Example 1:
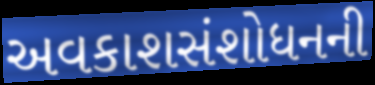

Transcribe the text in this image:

અવકાશસંશોધનની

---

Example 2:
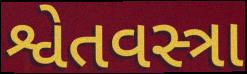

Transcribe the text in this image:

શ્વેતવસ્ત્રા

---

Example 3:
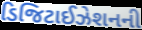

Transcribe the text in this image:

ડિજિટાઈઝેશનની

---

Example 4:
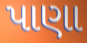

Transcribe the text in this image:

પાણા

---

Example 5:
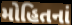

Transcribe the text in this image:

મોહિતનાં